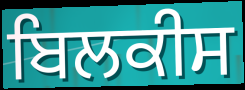
ਬਿਲਕੀਸ